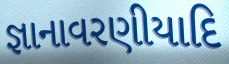
જ્ઞાનાવરણીયાદિ